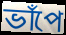
ভাঁপে